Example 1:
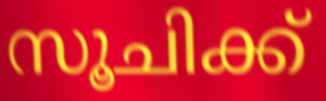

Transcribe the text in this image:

സൂചിക്ക്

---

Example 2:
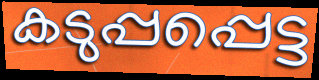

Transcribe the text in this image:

കടുപ്പപ്പെട്ട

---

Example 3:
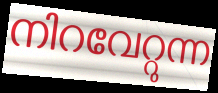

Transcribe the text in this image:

നിറവേറ്റുന്ന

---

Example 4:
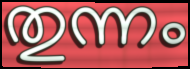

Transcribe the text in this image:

തുന്നം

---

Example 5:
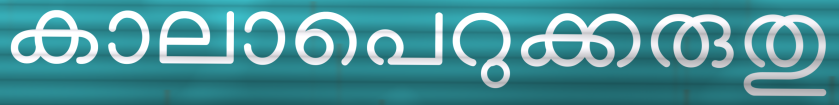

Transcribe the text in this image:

കാലാപെറുക്കരുതു